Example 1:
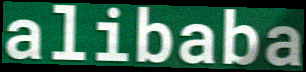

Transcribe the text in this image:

alibaba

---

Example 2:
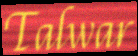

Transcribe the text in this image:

Talwar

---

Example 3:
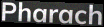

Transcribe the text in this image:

Pharach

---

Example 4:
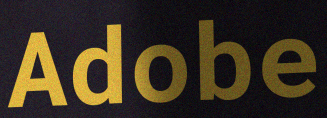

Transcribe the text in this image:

Adobe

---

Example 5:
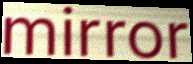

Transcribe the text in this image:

mirror